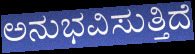
ಅನುಭವಿಸುತ್ತಿದೆ